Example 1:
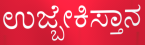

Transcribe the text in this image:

ಉಜ್ಬೇಕಿಸ್ತಾನ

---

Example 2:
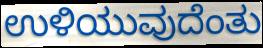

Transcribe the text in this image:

ಉಳಿಯುವುದೆಂತು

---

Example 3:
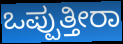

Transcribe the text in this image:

ಒಪ್ಪುತ್ತೀರಾ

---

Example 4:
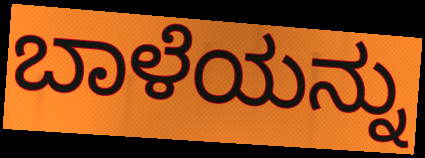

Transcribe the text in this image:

ಬಾಳೆಯನ್ನು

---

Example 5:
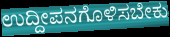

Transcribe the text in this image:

ಉದ್ದೀಪನಗೊಳಿಸಬೇಕು